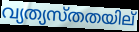
വ്യത്യസ്തതയില്